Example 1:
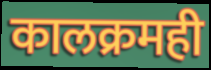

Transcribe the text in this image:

कालक्रमही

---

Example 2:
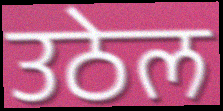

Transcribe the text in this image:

उठेल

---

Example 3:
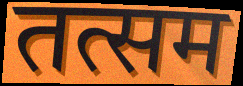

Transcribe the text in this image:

तत्सम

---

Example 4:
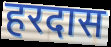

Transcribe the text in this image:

हरदास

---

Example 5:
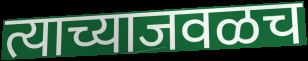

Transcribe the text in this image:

त्याच्याजवळच